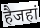
हैजहां